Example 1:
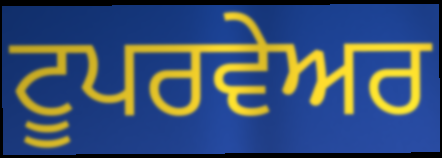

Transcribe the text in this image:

ਟੂਪਰਵੇਅਰ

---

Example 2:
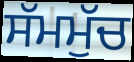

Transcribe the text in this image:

ਸੱਮਮੁੱਚ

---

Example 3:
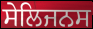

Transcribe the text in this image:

ਸੇਲਿਜਨਸ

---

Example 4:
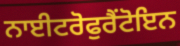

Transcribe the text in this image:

ਨਾਈਟਰੋਫੁਰੈਂਟੋਇਨ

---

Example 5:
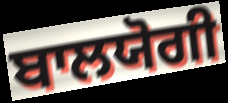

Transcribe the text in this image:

ਬਾਲਯੋਗੀ